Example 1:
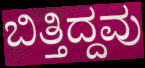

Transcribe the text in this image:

ಬಿತ್ತಿದ್ದವು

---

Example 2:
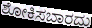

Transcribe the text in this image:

ಶೋಕಿಸಬಾರದು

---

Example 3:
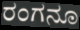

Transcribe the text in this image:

ರಂಗನೂ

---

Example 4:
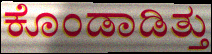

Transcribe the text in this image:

ಕೊಂಡಾಡಿತ್ತು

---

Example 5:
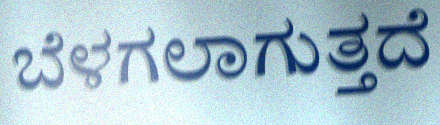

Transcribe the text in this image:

ಬೆಳಗಲಾಗುತ್ತದೆ